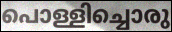
പൊള്ളിച്ചൊരു